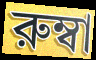
রুম্বা